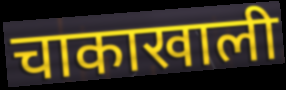
चाकाखाली